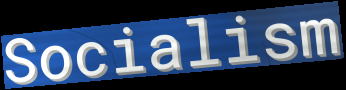
Socialism